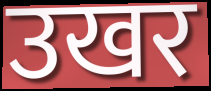
उखर